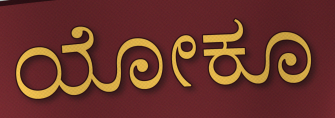
ಯೋಕೂ